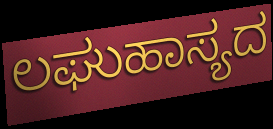
ಲಘುಹಾಸ್ಯದ